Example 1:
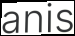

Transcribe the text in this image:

anis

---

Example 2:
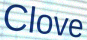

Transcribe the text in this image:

Clove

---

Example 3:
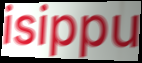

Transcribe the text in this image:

isippu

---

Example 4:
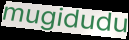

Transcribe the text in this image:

mugidudu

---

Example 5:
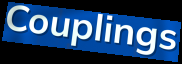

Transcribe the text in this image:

Couplings